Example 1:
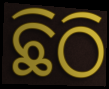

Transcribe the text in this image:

ଛିଠି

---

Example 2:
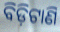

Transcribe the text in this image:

ବିଡ଼ିଟାଣି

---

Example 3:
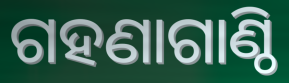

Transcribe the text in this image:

ଗହଣାଗାଣ୍ଠି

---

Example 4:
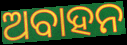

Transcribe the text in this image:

ଅବାହନ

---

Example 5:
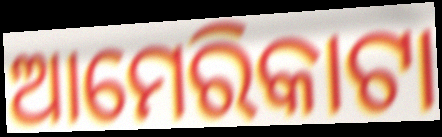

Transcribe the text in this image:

ଆମେରିକାଟା